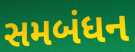
સમબંધન